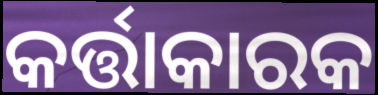
କର୍ତ୍ତାକାରକ